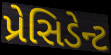
પ્રેસિડેન્ટ